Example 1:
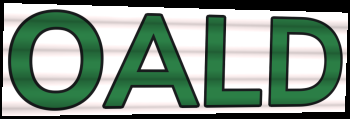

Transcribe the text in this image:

OALD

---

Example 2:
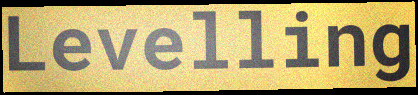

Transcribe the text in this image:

Levelling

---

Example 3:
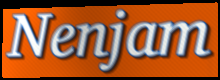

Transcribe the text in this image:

Nenjam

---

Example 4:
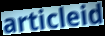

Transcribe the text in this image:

articleid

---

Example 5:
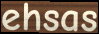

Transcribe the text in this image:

ehsas